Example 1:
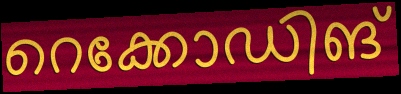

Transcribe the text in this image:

റെക്കോഡിങ്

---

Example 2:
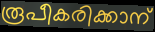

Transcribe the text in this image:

രൂപീകരിക്കാന്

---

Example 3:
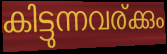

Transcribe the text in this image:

കിട്ടുന്നവര്ക്കും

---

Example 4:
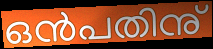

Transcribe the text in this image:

ഒൻപതിനു്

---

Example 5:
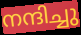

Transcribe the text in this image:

നന്ദിച്ചു